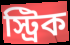
স্ট্রিক